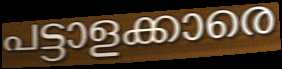
പട്ടാളക്കാരെ